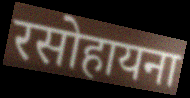
रसोहायना